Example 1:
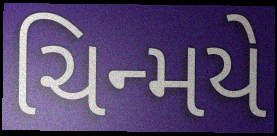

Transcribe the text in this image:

ચિન્મયે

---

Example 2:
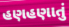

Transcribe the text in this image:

હણહણાતું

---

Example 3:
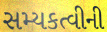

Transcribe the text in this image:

સમ્યકત્વીની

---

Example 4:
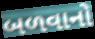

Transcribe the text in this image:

બળવાનો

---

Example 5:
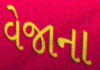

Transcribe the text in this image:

વેજાના